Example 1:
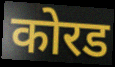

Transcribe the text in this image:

कोरड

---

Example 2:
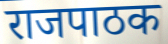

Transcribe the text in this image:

राजपाठक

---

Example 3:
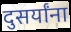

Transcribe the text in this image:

दुसर्यांना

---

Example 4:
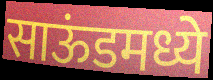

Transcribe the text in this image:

साऊंडमध्ये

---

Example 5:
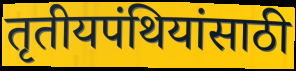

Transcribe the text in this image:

तृतीयपंथियांसाठी